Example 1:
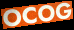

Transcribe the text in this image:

OCOG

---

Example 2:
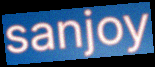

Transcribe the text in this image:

sanjoy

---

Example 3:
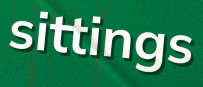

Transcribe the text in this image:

sittings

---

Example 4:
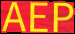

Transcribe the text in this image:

AEP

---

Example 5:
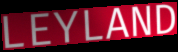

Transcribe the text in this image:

LEYLAND